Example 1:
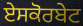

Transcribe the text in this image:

ਏਸਕੋਰਬੇਟ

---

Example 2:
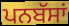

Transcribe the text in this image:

ਪਨਬੱਸਾਂ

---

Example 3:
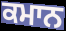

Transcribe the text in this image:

ਕਮਾਨ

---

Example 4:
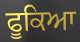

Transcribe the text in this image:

ਫੂਕਿਆ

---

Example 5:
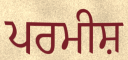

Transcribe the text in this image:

ਪਰਮੀਸ਼